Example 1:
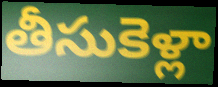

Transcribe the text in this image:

తీసుకెళ్లా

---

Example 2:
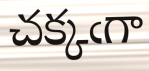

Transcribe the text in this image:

చక్కఁగా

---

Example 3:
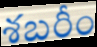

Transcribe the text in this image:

శబరీం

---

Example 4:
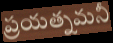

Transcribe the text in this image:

ప్రయత్నమనీ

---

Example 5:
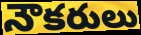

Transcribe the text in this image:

నౌకరులు